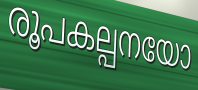
രൂപകല്പനയോ